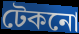
টেকনো